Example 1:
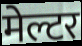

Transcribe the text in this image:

मेल्टर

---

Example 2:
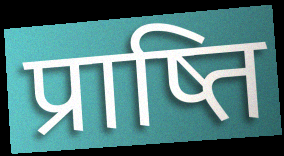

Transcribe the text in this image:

प्राष्ति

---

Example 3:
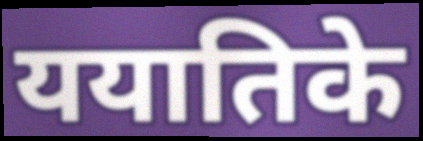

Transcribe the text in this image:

ययातिके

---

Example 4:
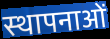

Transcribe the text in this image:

स्थापनाओं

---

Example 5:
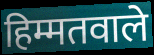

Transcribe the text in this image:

हिम्मतवाले